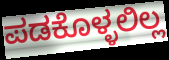
ಪಡಕೊಳ್ಳಲಿಲ್ಲ